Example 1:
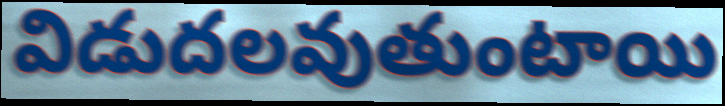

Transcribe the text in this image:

విడుదలవుతుంటాయి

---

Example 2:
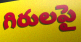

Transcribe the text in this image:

గిరులపై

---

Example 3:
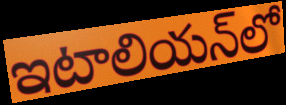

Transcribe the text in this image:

ఇటాలియన్‌లో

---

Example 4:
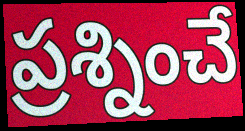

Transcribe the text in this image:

ప్రశ్నించే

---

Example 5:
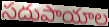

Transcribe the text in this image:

సదుపాయాల